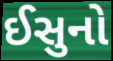
ઈસુનો